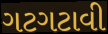
ગટગટાવી